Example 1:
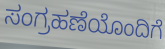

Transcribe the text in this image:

ಸಂಗ್ರಹಣೆಯೊಂದಿಗೆ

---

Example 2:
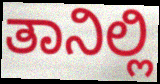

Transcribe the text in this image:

ತಾನಿಲ್ಲಿ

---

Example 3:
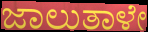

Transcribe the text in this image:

ಜಾಲುತಾಳೇ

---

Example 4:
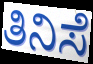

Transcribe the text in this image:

ತಿನಿಸೆ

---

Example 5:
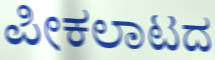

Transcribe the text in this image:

ಪೀಕಲಾಟದ